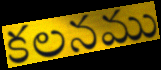
కలనము